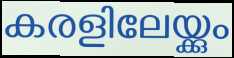
കരളിലേയ്ക്കും